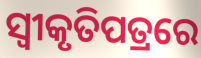
ସ୍ୱୀକୃତିପତ୍ରରେ